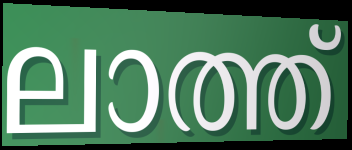
ലാത്ത്